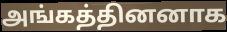
அங்கத்தினனாக